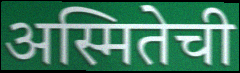
अस्मितेची